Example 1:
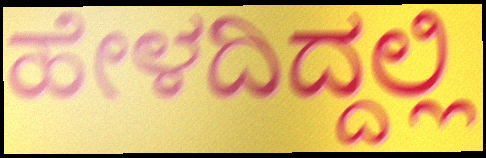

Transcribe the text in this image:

ಹೇಳದಿದ್ದಲ್ಲಿ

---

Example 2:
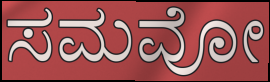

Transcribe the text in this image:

ಸಮವೋ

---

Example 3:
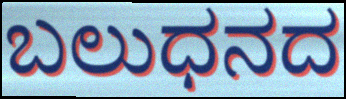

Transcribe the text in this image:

ಬಲುಧನದ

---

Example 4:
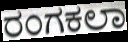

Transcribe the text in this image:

ರಂಗಕಲಾ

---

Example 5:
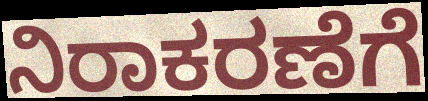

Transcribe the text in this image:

ನಿರಾಕರಣೆಗೆ